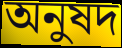
অনুষদ